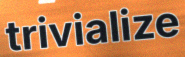
trivialize